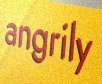
angrily